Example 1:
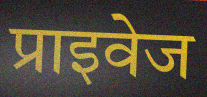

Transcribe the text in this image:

प्राइवेज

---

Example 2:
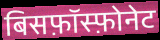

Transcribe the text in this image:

बिसफ़ॉस्फ़ोनेट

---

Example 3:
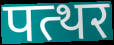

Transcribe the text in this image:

पत्‍थर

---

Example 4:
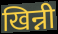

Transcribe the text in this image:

खिन्नी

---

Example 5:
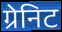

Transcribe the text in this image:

ग्रेनिट